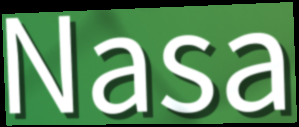
Nasa